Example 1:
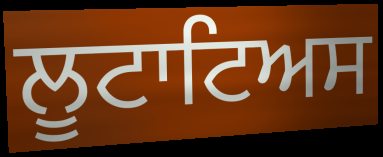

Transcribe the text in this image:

ਲੂਟਾਟਿਅਸ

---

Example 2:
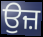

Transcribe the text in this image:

ਉਜ਼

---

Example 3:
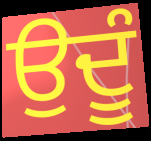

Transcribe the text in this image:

ਉਦੂੰ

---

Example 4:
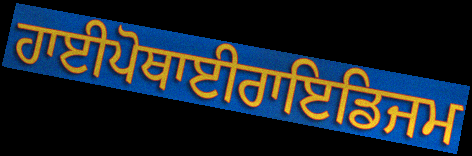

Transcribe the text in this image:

ਹਾਈਪੋਥਾਈਰਾਇਡਿਜਮ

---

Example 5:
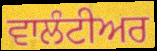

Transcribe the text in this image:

ਵਾਲੰਟੀਅਰ